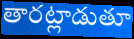
తారట్లాడుతూ